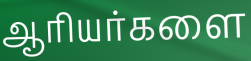
ஆரியர்களை